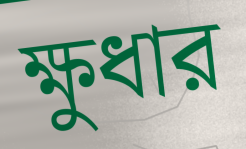
ক্ষুধার